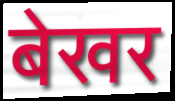
बेखर